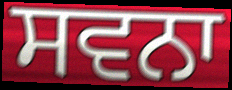
ਸਵਨਾ